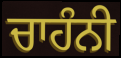
ਚਾਹੰਨੀ